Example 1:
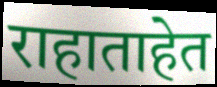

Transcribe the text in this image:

राहाताहेत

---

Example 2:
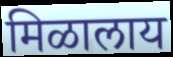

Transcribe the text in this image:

मिळालाय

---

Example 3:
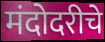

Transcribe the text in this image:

मंदोदरीचे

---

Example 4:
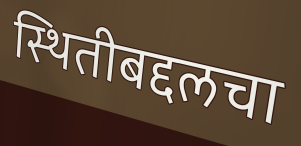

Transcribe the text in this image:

स्थितीबद्दलचा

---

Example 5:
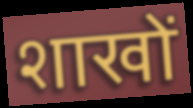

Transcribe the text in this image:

शाखों